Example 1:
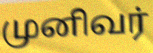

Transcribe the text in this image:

முனிவர்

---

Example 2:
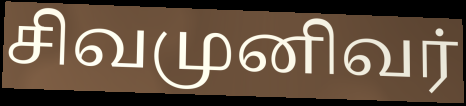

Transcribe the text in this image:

சிவமுனிவர்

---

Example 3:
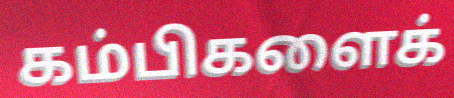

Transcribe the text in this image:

கம்பிகளைக்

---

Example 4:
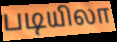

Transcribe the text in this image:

படியிலா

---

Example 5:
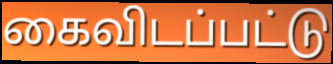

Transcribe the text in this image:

கைவிடப்பட்டு